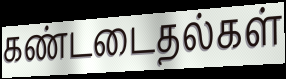
கண்டடைதல்கள்